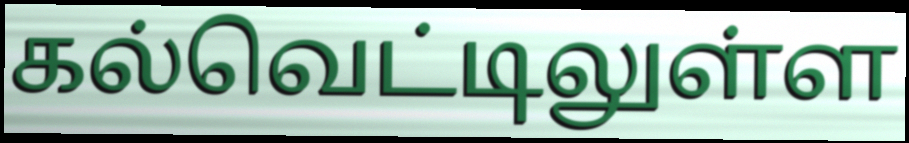
கல்வெட்டிலுள்ள